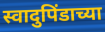
स्वादुपिंडाच्या